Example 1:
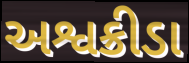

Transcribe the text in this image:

અશ્વક્રીડા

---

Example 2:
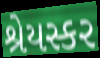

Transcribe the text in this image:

શ્રેયસ્કર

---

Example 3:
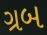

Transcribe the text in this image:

ગ્રબ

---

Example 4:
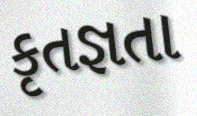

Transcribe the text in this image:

કૃતજ્ઞતા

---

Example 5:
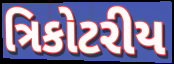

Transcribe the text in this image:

ત્રિકોટરીય